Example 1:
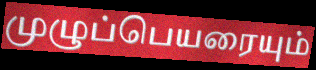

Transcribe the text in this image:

முழுப்பெயரையும்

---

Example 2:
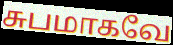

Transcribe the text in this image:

சுபமாகவே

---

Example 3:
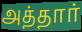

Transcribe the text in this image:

அத்தார்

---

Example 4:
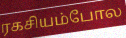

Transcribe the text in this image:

ரகசியம்போல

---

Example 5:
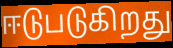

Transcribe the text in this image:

ஈடுபடுகிறது